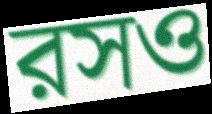
রসও